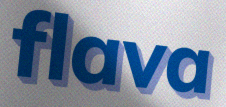
flava